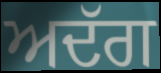
ਅਦੱਗ